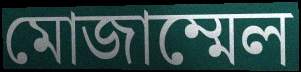
মোজাম্মেল